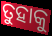
ତୁହାକୁ